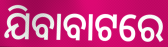
ଯିବାବାଟରେ